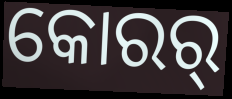
କୋରର୍